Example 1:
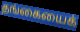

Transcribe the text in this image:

தங்கையைக்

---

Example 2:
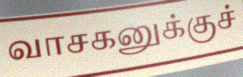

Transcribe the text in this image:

வாசகனுக்குச்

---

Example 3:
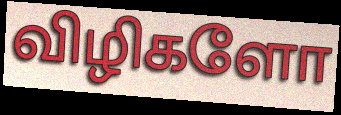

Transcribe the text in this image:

விழிகளோ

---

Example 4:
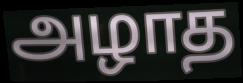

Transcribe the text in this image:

அழாத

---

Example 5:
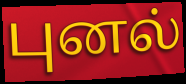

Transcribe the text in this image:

புனல்